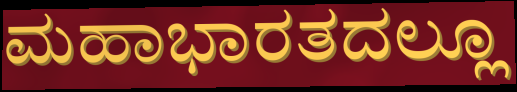
ಮಹಾಭಾರತದಲ್ಲೂ